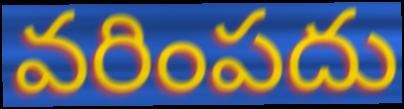
వరింపదు